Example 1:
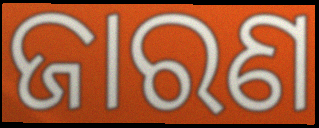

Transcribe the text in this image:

ଜାରଣ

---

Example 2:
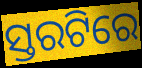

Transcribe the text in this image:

ସ୍ତରଟିରେ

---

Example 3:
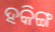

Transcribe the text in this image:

ହକିଙ୍ଗ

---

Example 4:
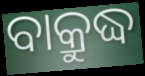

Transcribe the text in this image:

ବାକ୍ରୁଦ୍ଧ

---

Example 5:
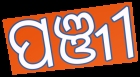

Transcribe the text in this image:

ପଞ୍ଜୀ